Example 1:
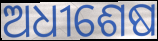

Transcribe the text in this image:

ଅଧୀଶେଷ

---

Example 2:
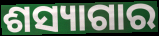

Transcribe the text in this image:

ଶସ୍ୟାଗାର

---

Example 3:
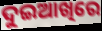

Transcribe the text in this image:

ଦୁଇଆଖିରେ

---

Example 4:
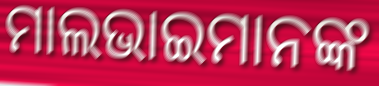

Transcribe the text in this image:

ମାଲଭାଇମାନଙ୍କ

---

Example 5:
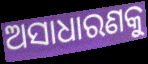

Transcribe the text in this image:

ଅସାଧାରଣକୁ